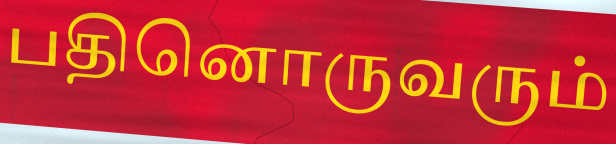
பதினொருவரும்